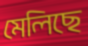
মেলিছে